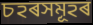
চহৰসমূহৰ